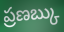
ప్రణబ్కు